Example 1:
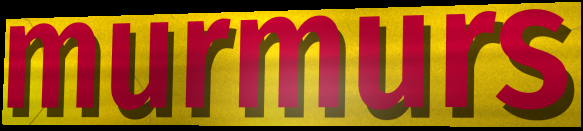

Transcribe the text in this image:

murmurs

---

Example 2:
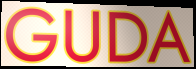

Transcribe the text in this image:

GUDA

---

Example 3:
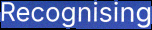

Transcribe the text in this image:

Recognising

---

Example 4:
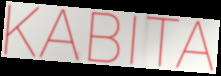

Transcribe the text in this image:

KABITA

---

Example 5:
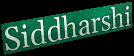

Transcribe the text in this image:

Siddharshi